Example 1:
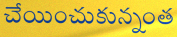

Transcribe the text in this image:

చేయించుకున్నంత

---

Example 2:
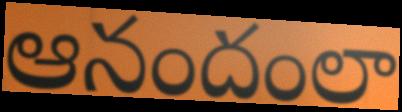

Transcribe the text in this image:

ఆనందంలా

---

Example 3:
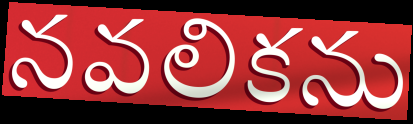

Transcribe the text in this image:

నవలికను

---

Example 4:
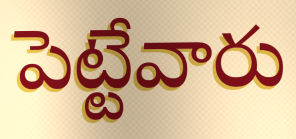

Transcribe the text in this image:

పెట్టేవారు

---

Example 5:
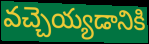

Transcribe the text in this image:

వచ్చెయ్యడానికి